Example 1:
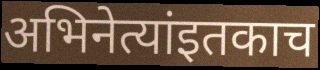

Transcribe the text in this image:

अभिनेत्यांइतकाच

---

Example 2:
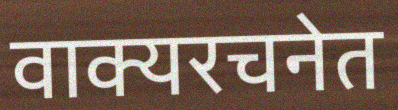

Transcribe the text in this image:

वाक्यरचनेत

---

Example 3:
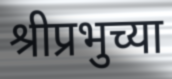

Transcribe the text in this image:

श्रीप्रभुच्या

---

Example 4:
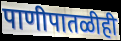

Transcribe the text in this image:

पाणीपातळीही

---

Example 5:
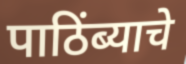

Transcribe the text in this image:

पाठिंब्याचे